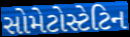
સોમેટોસ્ટેટિન